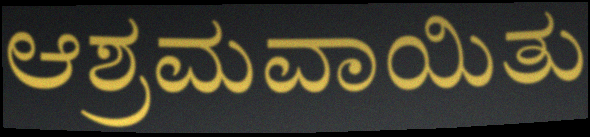
ಆಶ್ರಮವಾಯಿತು